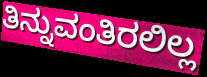
ತಿನ್ನುವಂತಿರಲಿಲ್ಲ